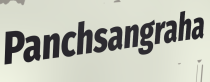
Panchsangraha